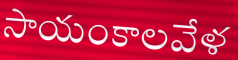
సాయంకాలవేళ